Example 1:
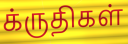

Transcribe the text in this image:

க்ருதிகள்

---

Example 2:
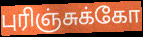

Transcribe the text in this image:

புரிஞ்சுக்கோ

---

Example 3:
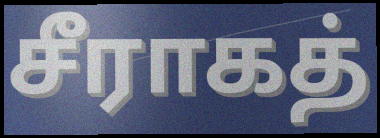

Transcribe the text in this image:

சீராகத்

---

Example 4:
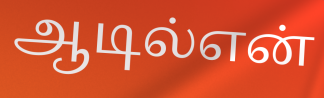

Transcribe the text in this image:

ஆடில்என்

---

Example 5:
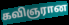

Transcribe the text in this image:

கவிஞரான